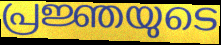
പ്രജ്ഞയുടെ